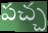
పచ్చ